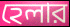
হেলার